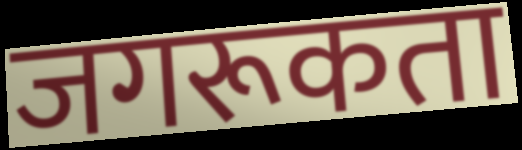
जगरूकता